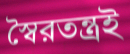
স্বৈরতন্ত্রই